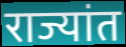
राज्यांत